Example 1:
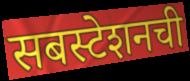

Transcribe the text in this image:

सबस्टेशनची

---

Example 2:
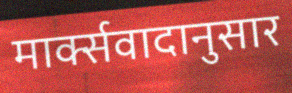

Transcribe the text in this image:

मार्क्सवादानुसार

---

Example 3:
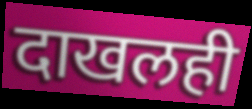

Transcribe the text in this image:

दाखलही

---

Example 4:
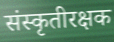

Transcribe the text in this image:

संस्कृतीरक्षक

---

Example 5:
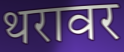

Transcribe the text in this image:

थरावर